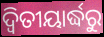
ଦ୍ଵିତୀୟାର୍ଦ୍ଧରୁ